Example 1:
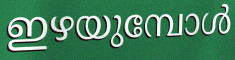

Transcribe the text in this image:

ഇഴയുമ്പോൾ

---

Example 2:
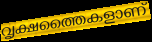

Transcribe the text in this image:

വൃക്ഷത്തൈകളാണ്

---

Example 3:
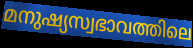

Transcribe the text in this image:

മനുഷ്യസ്വഭാവത്തിലെ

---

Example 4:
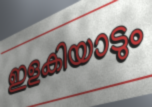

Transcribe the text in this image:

ഇളകിയാടും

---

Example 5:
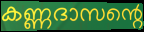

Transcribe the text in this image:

കണ്ണദാസന്റെ